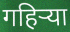
गहिर्‍या